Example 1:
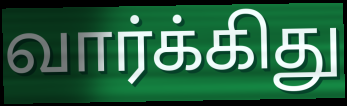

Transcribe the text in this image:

வார்க்கிது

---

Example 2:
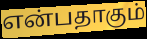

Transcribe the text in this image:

என்பதாகும்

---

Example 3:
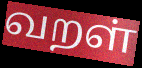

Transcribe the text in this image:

வறள்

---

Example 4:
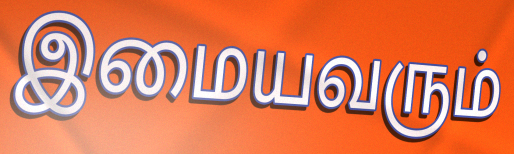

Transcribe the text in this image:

இமையவரும்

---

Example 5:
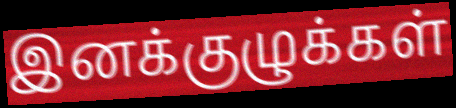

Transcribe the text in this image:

இனக்குழுக்கள்